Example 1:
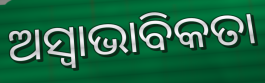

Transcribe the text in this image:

ଅସ୍ୱାଭାବିକତା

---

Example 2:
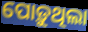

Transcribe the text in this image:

ପୋଡ଼ୁଥିଲା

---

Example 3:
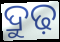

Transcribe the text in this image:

ଦ୍ରୁଢ଼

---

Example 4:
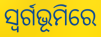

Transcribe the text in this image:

ସ୍ଵର୍ଗଭୂମିରେ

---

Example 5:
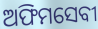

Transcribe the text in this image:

ଅଫିମସେବୀ